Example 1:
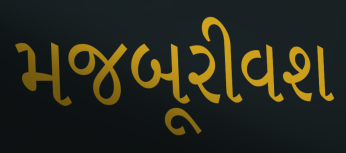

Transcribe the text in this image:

મજબૂરીવશ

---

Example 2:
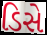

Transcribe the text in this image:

ડિસે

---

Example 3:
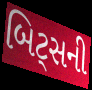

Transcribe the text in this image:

બિટ્સની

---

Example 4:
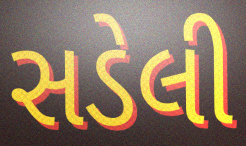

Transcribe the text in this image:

સડેલી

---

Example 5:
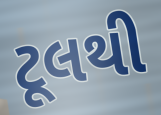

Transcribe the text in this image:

ટૂલથી